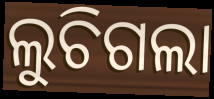
ଲୁଚିଗଲା